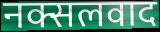
नक्सलवाद